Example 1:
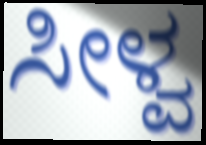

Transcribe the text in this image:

ಸೀಳ್ವ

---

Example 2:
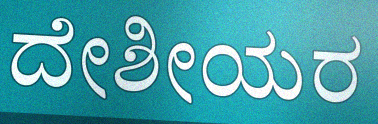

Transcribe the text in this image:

ದೇಶೀಯರ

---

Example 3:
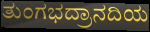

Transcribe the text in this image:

ತುಂಗಭದ್ರಾನದಿಯ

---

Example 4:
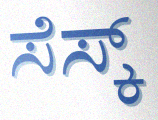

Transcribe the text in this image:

ಸೆಸ್ಕ್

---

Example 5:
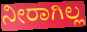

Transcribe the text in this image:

ನೀರಾಗಿಲ್ಲ